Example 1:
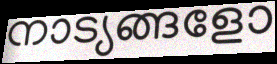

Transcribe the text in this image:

നാട്യങ്ങളോ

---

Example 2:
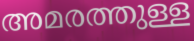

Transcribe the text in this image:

അമരത്തുള്ള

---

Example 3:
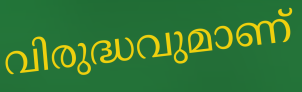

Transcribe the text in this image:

വിരുദ്ധവുമാണ്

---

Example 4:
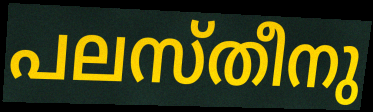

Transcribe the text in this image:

പലസ്തീനു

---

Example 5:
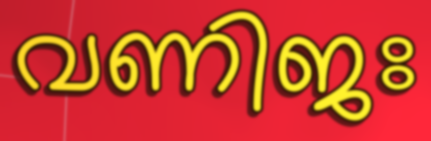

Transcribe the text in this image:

വണിജഃ